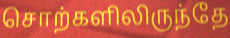
சொற்களிலிருந்தே